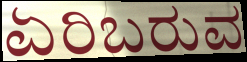
ಏರಿಬರುವ